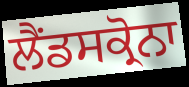
ਲੈਂਡਸਕ੍ਰੋਨਾ